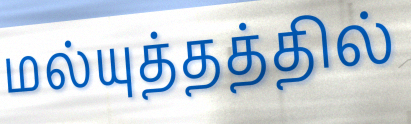
மல்யுத்தத்தில்